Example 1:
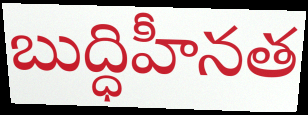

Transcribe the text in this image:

బుద్ధిహీనత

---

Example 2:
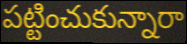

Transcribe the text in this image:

పట్టించుకున్నారా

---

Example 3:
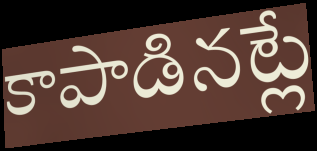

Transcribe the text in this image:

కాపాడినట్లే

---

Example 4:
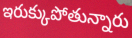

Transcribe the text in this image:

ఇరుక్కుపోతున్నారు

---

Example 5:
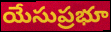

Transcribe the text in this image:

యేసుప్రభూ